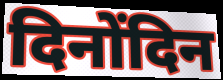
दिनोंदिन